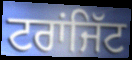
ਟਰਾਂਜਿੱਟ